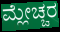
ಮ್ಲೇಚ್ಚರ